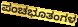
ಪಂಚಭೂತಂಗಳ